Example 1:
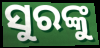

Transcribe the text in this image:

ସୁରଙ୍କୁ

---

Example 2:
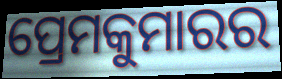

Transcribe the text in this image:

ପ୍ରେମକୁମାରର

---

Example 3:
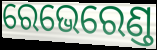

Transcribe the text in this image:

ରେଭେରେଣ୍ଡ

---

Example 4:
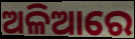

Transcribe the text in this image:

ଅଳିଆରେ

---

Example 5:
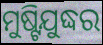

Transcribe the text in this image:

ମୁଷ୍ଟିଯୁଦ୍ଧର